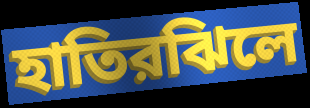
হাতিরঝিলে